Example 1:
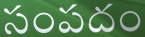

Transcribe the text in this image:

సంపదం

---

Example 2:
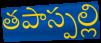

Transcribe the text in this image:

తపాస్పల్లి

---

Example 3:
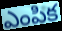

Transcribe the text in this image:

ఎంపిక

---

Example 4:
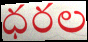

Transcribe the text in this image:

ధరల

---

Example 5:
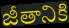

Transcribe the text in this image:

జీతానికి